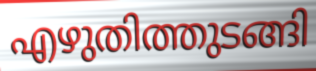
എഴുതിത്തുടങ്ങി